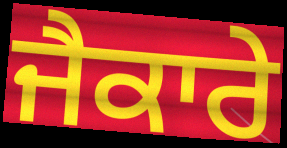
ਜੈਕਾਰੇ